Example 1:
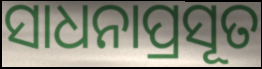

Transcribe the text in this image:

ସାଧନାପ୍ରସୂତ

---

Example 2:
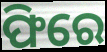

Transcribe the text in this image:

ଫିରେ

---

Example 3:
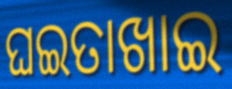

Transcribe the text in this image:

ଘଇତାଖାଇ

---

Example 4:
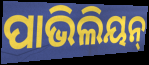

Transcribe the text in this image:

ପାଭିଲିୟନ୍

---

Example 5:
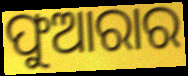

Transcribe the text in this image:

ଫୁଆରାର